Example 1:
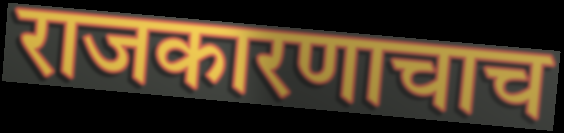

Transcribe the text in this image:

राजकारणाचाच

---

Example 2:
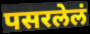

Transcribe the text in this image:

पसरलेलं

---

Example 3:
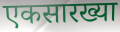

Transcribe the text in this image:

एकसारख्या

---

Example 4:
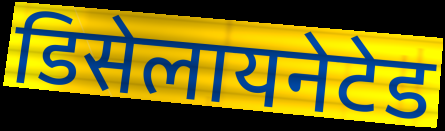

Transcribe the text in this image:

डिसेलायनेटेड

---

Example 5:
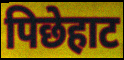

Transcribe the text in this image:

पिछेहाट